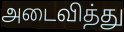
அடைவித்து